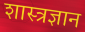
शास्त्रज्ञान